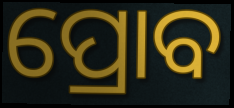
ପ୍ରୋବ